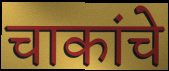
चाकांचे